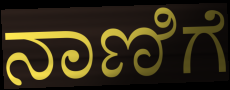
ನಾಣಿಗೆ